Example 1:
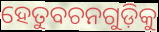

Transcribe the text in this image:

ହେତୁବଚନଗୁଡ଼ିକୁ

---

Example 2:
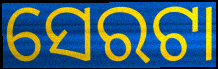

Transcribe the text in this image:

ସେରଟା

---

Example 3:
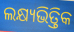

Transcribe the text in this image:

ଲକ୍ଷ୍ୟଭିତ୍ତିକ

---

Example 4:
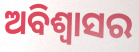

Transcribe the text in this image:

ଅବିଶ୍ବାସର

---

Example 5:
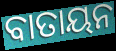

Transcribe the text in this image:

ବାତାୟନ